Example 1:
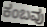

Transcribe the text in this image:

ಕಂಬವು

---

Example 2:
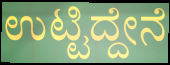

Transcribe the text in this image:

ಉಟ್ಟಿದ್ದೇನೆ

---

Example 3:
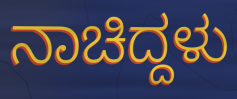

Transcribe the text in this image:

ನಾಚಿದ್ದಳು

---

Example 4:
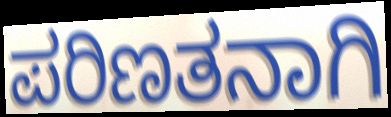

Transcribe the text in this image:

ಪರಿಣತನಾಗಿ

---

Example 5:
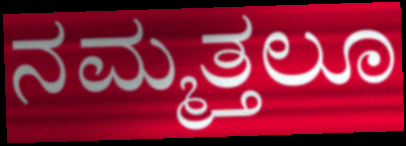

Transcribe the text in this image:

ನಮ್ಮತ್ತಲೂ